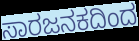
ಸಾರಜನಕದಿಂದ